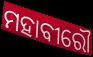
ମହାବୀରୌ